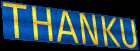
THANKU